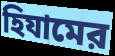
হিযামের